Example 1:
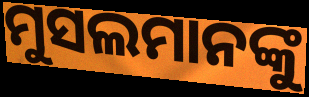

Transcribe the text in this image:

ମୁସଲମାନଙ୍କୁ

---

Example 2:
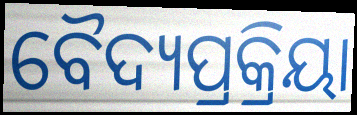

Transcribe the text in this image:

ବୈଦ୍ୟପ୍ରକ୍ରିୟା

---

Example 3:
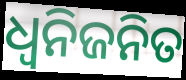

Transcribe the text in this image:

ଧ୍ଵନିଜନିତ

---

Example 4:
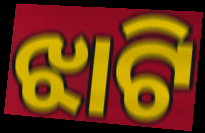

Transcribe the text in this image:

ଝାଟି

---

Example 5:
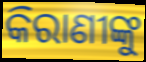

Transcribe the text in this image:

କିରାଣୀଙ୍କୁ